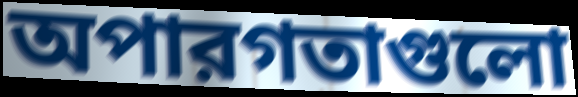
অপারগতাগুলো